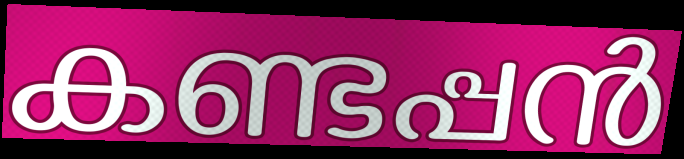
കണ്ടപ്പൻ